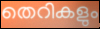
തെറികളും